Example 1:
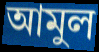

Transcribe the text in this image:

আমুল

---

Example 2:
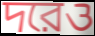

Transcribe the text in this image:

দরেও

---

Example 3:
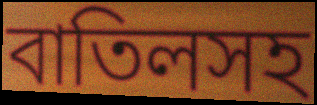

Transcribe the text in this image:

বাতিলসহ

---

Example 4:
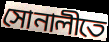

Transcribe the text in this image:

সোনালীতে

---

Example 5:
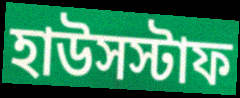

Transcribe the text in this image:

হাউসস্টাফ